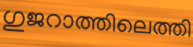
ഗുജറാത്തിലെത്തി